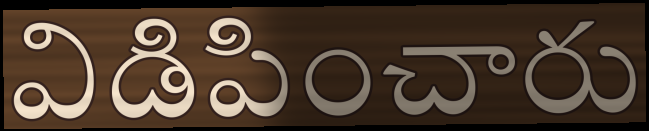
విడిపించారు